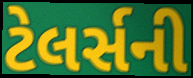
ટેલર્સની